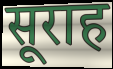
सूराह